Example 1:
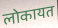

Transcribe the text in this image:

लोकायत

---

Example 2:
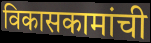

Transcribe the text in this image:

विकासकामांची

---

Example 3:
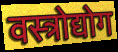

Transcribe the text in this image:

वस्त्रोद्योग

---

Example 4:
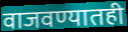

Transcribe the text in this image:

वाजवण्यातही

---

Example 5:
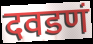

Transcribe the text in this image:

दवडणं